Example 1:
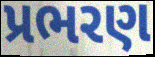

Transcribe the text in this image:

પ્રભરણ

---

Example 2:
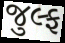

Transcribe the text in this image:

જુલ્ફ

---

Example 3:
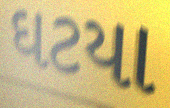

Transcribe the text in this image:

ઘટયા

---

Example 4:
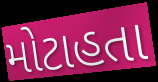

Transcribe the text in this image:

મોટાહતા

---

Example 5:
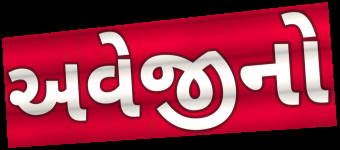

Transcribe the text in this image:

અવેજીનો